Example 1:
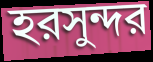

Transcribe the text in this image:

হরসুন্দর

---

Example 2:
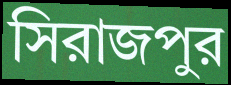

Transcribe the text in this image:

সিরাজপুর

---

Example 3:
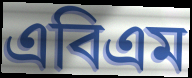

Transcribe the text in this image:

এবিএম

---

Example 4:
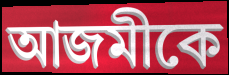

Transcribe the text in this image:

আজমীকে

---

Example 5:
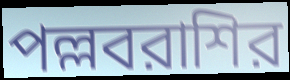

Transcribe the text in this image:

পল্লবরাশির